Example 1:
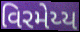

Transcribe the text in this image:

વિરમેય્ય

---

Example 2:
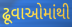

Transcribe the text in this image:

ઢૂવાઓમાંથી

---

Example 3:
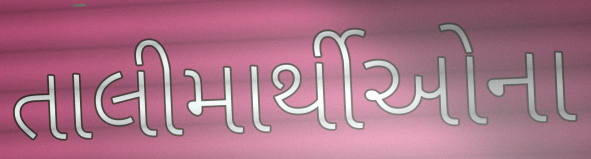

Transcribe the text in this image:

તાલીમાર્થીઓના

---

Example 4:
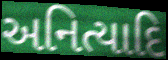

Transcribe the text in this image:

અનિત્યાદિ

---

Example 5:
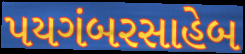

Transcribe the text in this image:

પયગંબરસાહેબ